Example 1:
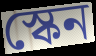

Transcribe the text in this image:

স্কেন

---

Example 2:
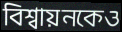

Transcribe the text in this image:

বিশ্বায়নকেও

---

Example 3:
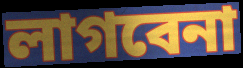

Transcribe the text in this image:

লাগবেনা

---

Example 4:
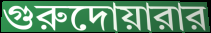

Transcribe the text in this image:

গুরুদোয়ারার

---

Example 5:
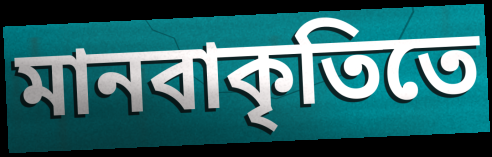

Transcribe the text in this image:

মানবাকৃতিতে